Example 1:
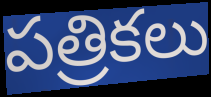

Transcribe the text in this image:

పత్రికలు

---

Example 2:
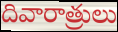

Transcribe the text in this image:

దివారాత్రులు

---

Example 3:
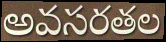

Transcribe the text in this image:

అవసరతల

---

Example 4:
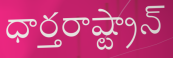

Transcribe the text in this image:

ధార్తరాష్ట్రాన్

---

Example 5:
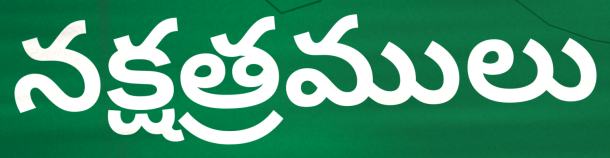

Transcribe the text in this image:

నక్షత్రములు